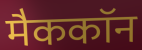
मैककॉन